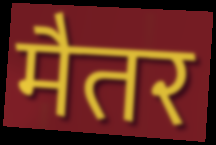
मैतर